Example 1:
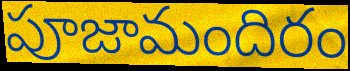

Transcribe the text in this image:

పూజామందిరం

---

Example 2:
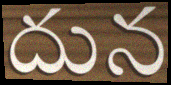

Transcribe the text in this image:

దున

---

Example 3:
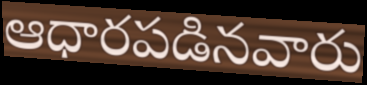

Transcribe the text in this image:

ఆధారపడినవారు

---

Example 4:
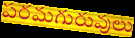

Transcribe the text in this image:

పరమగురువులు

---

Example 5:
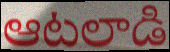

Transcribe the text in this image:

ఆటలాడి